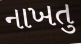
નાખતુ